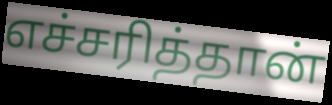
எச்சரித்தான்